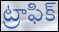
ట్రాఫిక్